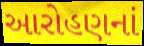
આરોહણનાં